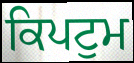
ਕਿਪਟੁਮ